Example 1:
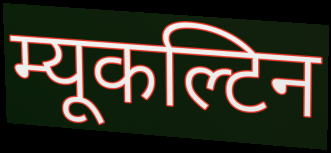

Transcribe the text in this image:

म्यूकल्टिन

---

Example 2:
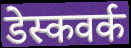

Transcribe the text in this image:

डेस्कवर्क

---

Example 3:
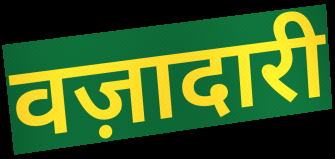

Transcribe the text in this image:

वज़ादारी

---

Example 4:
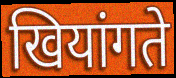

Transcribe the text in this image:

खियांगते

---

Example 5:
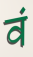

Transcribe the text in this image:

वं